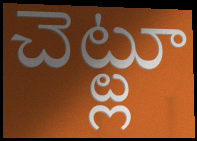
చెట్ట్లూ